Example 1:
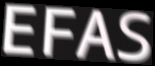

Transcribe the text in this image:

EFAS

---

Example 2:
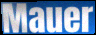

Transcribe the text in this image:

Mauer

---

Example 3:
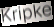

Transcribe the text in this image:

Kripke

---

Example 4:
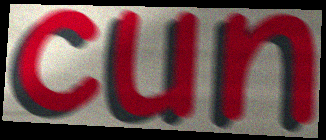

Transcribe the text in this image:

cun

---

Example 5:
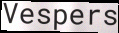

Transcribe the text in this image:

Vespers